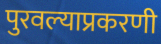
पुरवल्याप्रकरणी